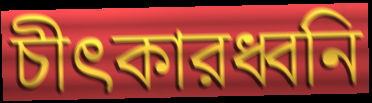
চীৎকারধ্বনি